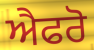
ਐਫਰੋ